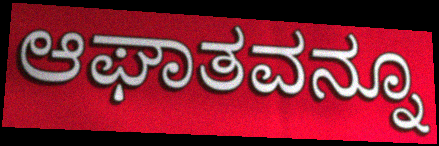
ಆಘಾತವನ್ನೂ